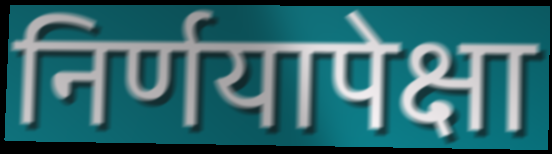
निर्णयापेक्षा